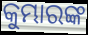
କୁମ୍ଭାରଙ୍କ